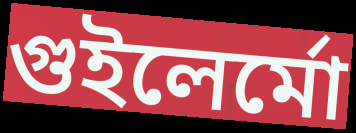
গুইলের্মো